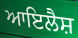
ਆਇਲੈਸ਼